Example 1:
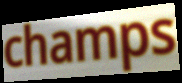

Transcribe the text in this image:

champs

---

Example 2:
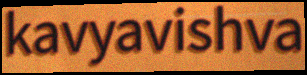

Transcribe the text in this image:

kavyavishva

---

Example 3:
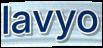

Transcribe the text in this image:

lavyo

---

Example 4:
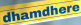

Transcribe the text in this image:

dhamdhere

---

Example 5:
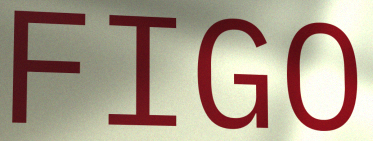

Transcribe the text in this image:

FIGO